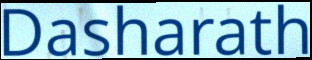
Dasharath